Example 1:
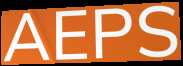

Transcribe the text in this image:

AEPS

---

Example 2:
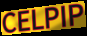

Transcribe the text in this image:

CELPIP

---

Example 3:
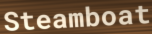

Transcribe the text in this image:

Steamboat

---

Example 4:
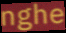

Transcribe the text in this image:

nghe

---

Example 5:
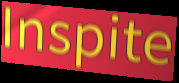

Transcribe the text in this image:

Inspite